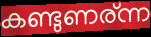
കണ്ടുണര്ന്ന